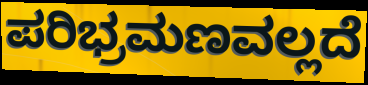
ಪರಿಭ್ರಮಣವಲ್ಲದೆ